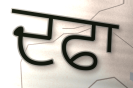
ਦਫਾ